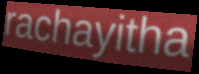
rachayitha